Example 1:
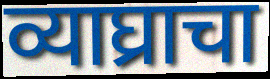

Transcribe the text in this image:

व्याघ्राचा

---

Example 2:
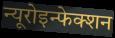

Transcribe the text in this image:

न्यूरोइन्फेक्शन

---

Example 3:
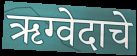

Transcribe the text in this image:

ऋग्वेदाचे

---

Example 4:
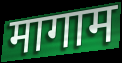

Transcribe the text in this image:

मागाम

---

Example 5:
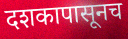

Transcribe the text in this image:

दशकापासूनच